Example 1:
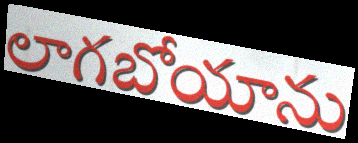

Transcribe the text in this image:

లాగబోయాను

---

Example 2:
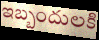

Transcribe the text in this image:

ఇబ్బందులకి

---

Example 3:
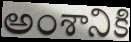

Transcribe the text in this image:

అంశానికి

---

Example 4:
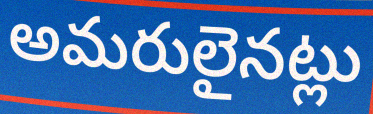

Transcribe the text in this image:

అమరులైనట్లు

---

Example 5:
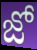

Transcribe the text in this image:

జో